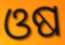
ଓଷ